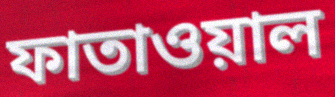
ফাতাওয়াল